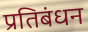
प्रतिबंधन